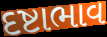
દષ્ટાભાવ